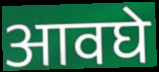
आवघे